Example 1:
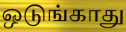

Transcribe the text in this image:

ஒடுங்காது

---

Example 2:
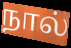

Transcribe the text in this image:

நால்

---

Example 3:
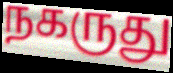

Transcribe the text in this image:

நகருது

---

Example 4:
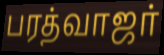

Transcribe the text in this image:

பரத்வாஜர்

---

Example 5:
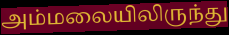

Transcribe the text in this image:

அம்மலையிலிருந்து